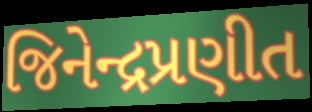
જિનેન્દ્રપ્રણીત